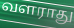
வளராது